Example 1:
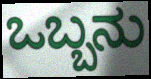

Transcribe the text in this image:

ಒಬ್ಬನು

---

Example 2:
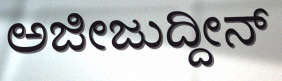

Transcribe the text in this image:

ಅಜೀಜುದ್ದೀನ್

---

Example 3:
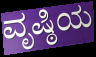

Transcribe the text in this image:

ವೃಷ್ಠಿಯ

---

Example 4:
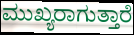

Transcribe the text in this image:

ಮುಖ್ಯರಾಗುತ್ತಾರೆ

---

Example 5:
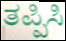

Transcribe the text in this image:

ತಪ್ಪಿಸಿ